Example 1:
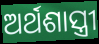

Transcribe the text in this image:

ଅର୍ଥଶାସ୍ତ୍ରୀ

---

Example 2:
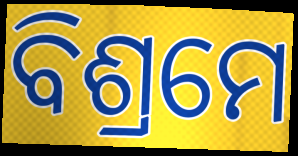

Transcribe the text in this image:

ବିଶ୍ରମେ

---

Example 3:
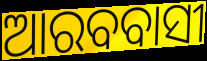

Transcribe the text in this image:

ଆରବବାସୀ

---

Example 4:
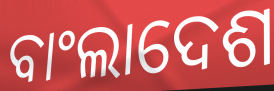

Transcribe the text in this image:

ବାଂଲାଦେଶ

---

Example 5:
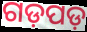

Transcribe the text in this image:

ଗଡ଼ପଡ଼